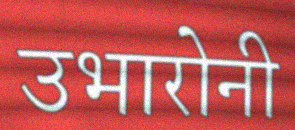
उभारोनी